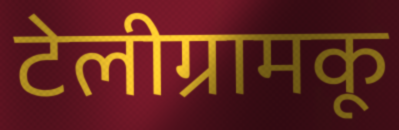
टेलीग्रामकू